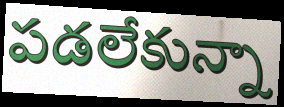
పడలేకున్నా